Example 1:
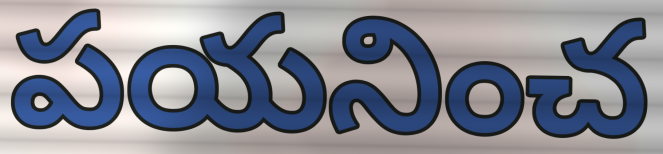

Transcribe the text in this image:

పయనించ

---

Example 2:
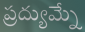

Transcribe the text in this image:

ప్రద్యుమ్నే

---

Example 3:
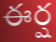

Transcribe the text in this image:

ఈర్ష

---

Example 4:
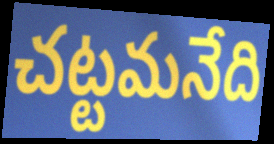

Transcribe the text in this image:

చట్టమనేది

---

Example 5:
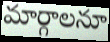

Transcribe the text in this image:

మార్గాలనూ